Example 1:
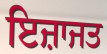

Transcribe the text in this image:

ਇਜ਼ਾਜਤ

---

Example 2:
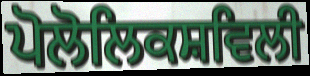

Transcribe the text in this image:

ਪੋਲੋਲਿਕਸ਼ਵਿਲੀ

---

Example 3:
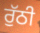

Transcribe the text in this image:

ਰੁੱਠੀ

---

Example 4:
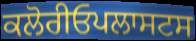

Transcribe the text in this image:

ਕਲੋਰੀਓਪਲਾਸਟਸ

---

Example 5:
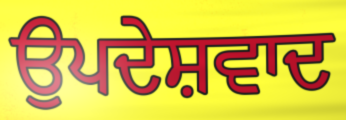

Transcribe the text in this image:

ਉਪਦੇਸ਼ਵਾਦ